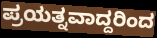
ಪ್ರಯತ್ನವಾದ್ದರಿಂದ